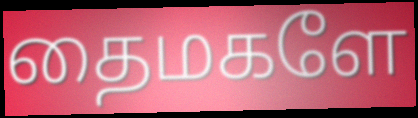
தைமகளே